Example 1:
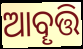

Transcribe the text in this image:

ଆବୄତ୍ତି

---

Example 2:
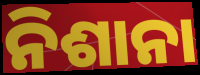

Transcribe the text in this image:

ନିଶାନା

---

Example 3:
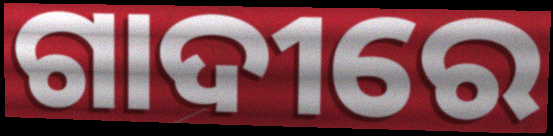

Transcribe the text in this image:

ଗାଦୀରେ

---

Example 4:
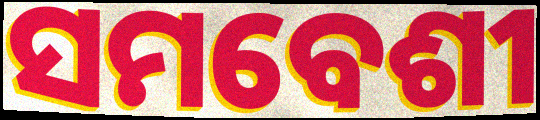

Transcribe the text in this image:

ସମବେଶୀ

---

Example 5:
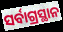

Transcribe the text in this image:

ସର୍ବାଗ୍ରସ୍ଥାନ